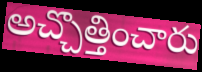
అచ్చొత్తించారు